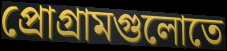
প্রোগ্রামগুলোতে